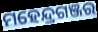
ମହେନ୍ଦ୍ରଗଞ୍ଜର